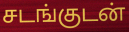
சடங்குடன்